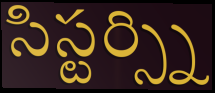
సిస్టర్స్ని